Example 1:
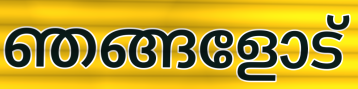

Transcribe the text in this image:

ഞങ്ങളോട്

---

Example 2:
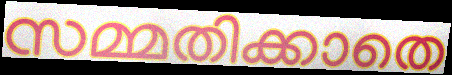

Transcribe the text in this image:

സമ്മതിക്കാതെ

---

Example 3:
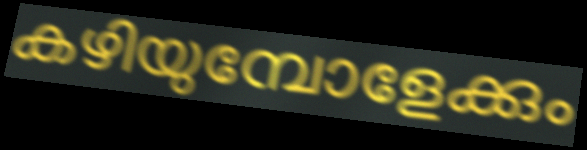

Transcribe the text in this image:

കഴിയുമ്പോളേക്കും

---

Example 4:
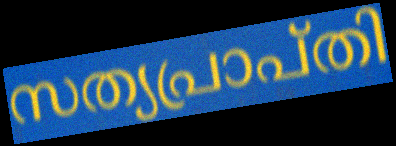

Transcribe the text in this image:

സത്യപ്രാപ്തി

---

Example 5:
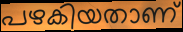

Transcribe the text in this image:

പഴകിയതാണ്